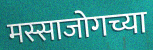
मस्साजोगच्या